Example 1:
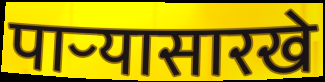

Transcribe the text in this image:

पाऱ्यासारखे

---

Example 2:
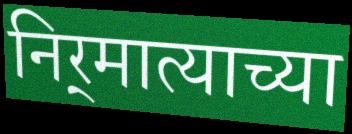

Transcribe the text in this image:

निर्मात्याच्या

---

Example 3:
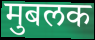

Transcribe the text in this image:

मुबलक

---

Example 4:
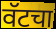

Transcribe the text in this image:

वॅटचा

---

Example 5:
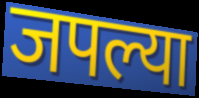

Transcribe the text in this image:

जपल्या